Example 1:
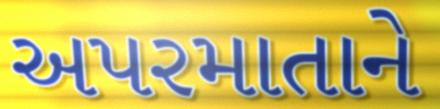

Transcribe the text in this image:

અપરમાતાને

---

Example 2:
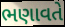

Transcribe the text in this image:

ભણાવતે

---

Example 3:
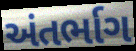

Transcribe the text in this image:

અંતર્ભાગ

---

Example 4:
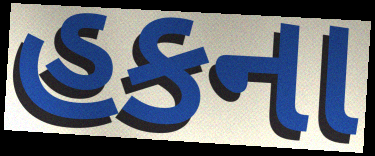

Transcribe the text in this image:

હકના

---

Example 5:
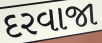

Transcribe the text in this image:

દરવાજા